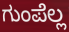
ಗುಂಪೆಲ್ಲ